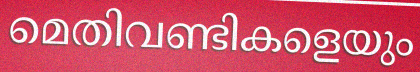
മെതിവണ്ടികളെയും